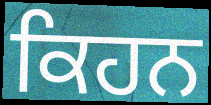
ਕਿਹਨ